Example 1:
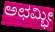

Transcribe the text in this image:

ಅಛಮ್ಭೀ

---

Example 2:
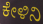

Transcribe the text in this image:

ಕೇಳಿನಿ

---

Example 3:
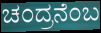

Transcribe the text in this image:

ಚಂದ್ರನೆಂಬ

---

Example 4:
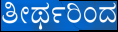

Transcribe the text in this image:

ತೀರ್ಥರಿಂದ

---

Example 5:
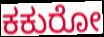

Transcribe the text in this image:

ಕಕುರೋ